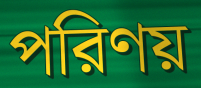
পরিণয়